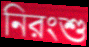
নিরংশু